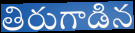
తిరుగాడిన